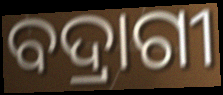
ବଦ୍ରାଗୀ